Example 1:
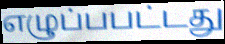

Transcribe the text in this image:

எழுப்பபட்டது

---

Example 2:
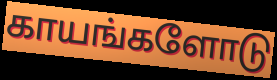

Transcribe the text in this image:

காயங்களோடு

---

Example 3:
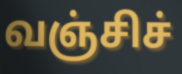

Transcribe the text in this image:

வஞ்சிச்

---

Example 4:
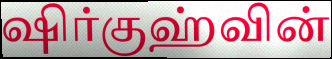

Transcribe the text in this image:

ஷிர்குஹ்வின்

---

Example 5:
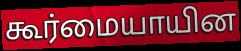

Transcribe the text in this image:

கூர்மையாயின